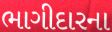
ભાગીદારના